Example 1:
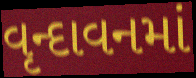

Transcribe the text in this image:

વૃન્દાવનમાં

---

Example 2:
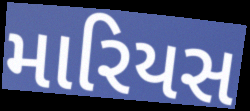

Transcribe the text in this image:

મારિયસ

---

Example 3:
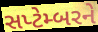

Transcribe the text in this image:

સપ્ટેમ્બરને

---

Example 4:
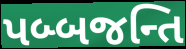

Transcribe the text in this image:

પબ્બજન્તિ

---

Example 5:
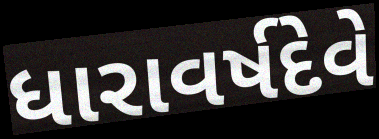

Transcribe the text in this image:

ધારાવર્ષદેવે